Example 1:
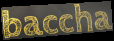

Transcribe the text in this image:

baccha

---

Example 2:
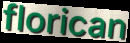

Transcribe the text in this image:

florican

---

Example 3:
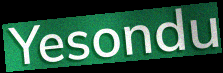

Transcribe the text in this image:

Yesondu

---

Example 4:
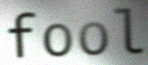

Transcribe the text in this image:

fool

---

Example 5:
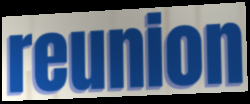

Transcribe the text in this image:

reunion